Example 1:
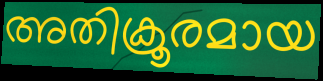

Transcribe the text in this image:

അതിക്രൂരമായ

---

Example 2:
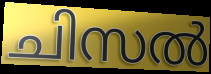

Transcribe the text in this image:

ചിസൽ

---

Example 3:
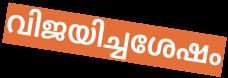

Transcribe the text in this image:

വിജയിച്ചശേഷം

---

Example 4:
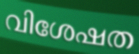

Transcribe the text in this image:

വിശേഷത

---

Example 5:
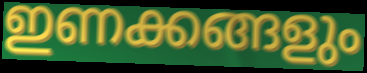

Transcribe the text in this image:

ഇണക്കങ്ങളും